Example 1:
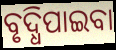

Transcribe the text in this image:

ବୃଦ୍ଧିପାଇବା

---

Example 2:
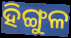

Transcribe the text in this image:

ହିଙ୍ଗୁଳ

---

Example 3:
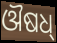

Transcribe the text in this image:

ଔଷଧ୍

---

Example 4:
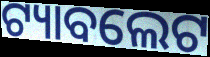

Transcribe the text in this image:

ଟ୍ୟାବଲେଟ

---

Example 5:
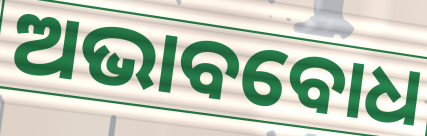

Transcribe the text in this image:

ଅଭାବବୋଧ